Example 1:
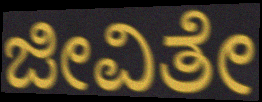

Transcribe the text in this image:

ಜೀವಿತೇ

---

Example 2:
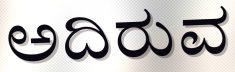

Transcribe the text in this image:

ಅದಿರುವ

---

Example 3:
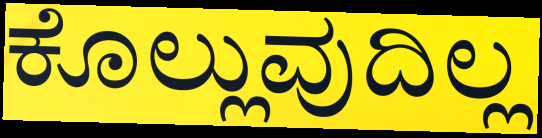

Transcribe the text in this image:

ಕೊಲ್ಲುವುದಿಲ್ಲ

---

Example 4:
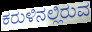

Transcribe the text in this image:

ಕರುಳಿನಲ್ಲಿರುವ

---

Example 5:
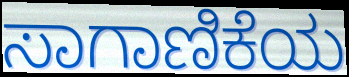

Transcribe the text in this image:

ಸಾಗಾಣಿಕೆಯ